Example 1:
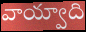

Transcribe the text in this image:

వాయ్వాది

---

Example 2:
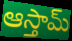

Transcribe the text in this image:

ఆస్తామ్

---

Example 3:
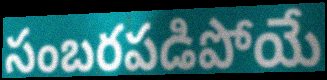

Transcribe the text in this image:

సంబరపడిపోయే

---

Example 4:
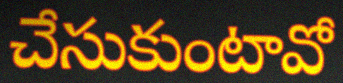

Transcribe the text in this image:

చేసుకుంటావో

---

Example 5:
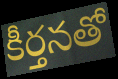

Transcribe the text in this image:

కీర్తనతో